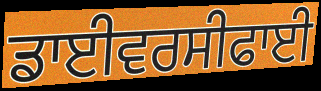
ਡਾਈਵਰਸੀਫਾਈ